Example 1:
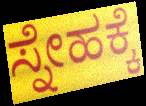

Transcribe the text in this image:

ಸ್ನೇಹಕ್ಕೆ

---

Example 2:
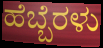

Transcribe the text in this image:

ಹೆಬ್ಬೆರಳು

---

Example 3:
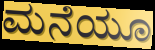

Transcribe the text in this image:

ಮನೆಯೂ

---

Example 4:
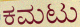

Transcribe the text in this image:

ಕಮಟು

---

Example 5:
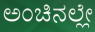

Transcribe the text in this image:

ಅಂಚಿನಲ್ಲೇ